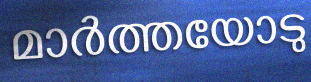
മാർത്തയോടു